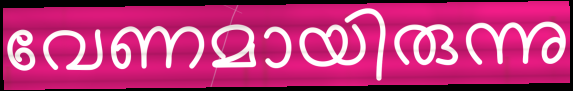
വേണമായിരുന്നു